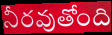
నీరవుతోంది